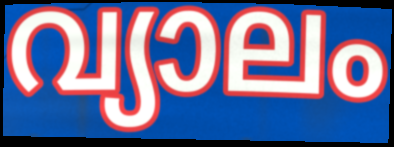
വ്യാലം